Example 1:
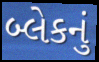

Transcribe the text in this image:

બ્લેકનું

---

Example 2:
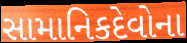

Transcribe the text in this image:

સામાનિકદેવોના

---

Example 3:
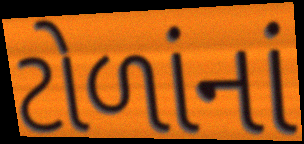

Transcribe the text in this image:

ટોળાંનાં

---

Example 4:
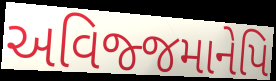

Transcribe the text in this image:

અવિજ્જમાનેપિ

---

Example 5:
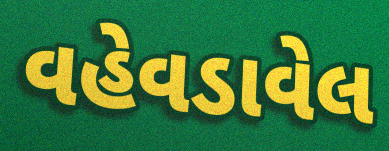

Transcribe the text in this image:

વહેવડાવેલ